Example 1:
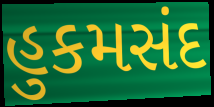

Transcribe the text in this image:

હુકમસંદ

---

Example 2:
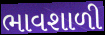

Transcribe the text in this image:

ભાવશાળી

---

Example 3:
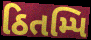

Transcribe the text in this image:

ઠિતમ્પિ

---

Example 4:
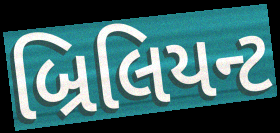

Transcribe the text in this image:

બ્રિલિયન્ટ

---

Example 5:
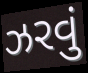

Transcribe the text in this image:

ઝરવું